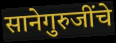
सानेगुरुजींचे